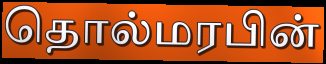
தொல்மரபின்